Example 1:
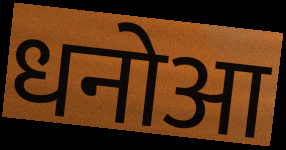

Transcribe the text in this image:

धनोआ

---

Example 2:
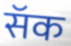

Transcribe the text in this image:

सॅक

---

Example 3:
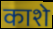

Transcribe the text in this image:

काशे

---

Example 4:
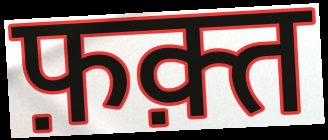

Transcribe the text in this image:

फ़क़्त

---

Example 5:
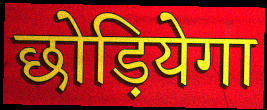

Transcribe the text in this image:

छोड़ियेगा